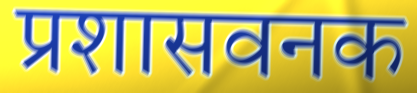
प्रशासवनक